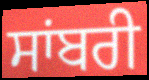
ਸਾਂਬਰੀ